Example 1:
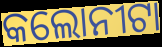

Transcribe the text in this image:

କଲୋନୀଟା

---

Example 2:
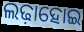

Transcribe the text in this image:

ଲଢ଼ାହୋଇ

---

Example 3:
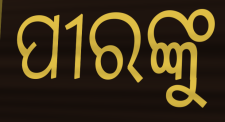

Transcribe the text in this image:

ପୀରଙ୍କୁ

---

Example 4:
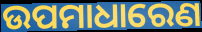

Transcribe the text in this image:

ଉପମାଧାରେଣ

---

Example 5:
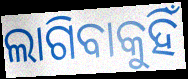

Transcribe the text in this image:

ଲାଗିବାକୁହିଁ